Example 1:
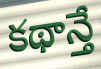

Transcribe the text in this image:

కథాన్తే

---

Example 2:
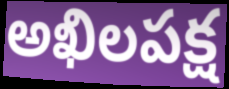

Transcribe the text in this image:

అఖిలపక్ష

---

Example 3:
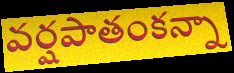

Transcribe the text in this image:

వర్షపాతంకన్నా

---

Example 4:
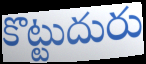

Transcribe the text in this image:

కొట్టుదురు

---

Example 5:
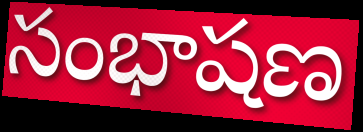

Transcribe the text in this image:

సంభాషణ